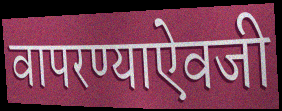
वापरण्याऐवजी